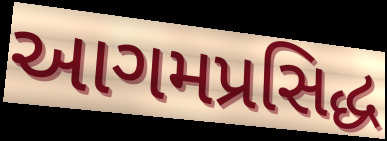
આગમપ્રસિદ્ધ